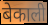
बेकाली